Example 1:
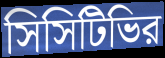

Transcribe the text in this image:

সিসিটিভির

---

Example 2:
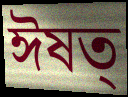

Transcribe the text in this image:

ঈষত্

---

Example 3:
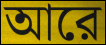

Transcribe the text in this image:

আরে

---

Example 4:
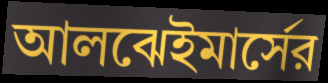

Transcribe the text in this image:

আলঝেইমার্সের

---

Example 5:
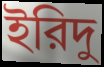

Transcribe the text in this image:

ইরিদু